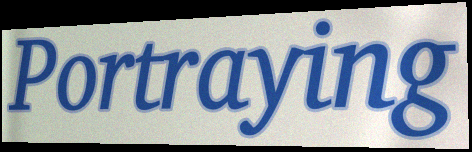
Portraying